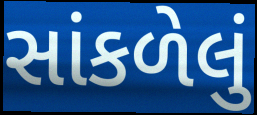
સાંકળેલું